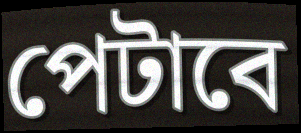
পেটাবে